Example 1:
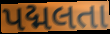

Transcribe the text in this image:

પદ્મલતા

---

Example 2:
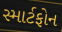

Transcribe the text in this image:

સ્માર્ટફોન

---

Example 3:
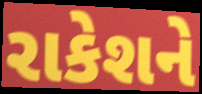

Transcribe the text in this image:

રાકેશને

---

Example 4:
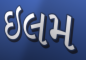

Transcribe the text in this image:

ઇલમ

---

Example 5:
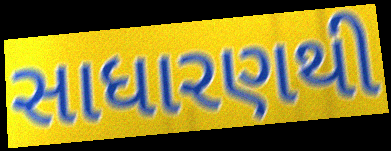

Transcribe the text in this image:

સાધારણથી